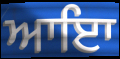
ਆਇਾ